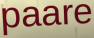
paare